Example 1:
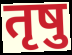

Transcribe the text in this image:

तृषु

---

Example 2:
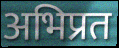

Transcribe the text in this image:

अभिप्रत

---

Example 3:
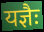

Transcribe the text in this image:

यज्ञैः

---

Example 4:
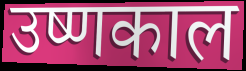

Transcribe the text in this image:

उष्णकाल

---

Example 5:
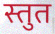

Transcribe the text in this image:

स्तुत